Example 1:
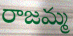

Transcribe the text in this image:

రాజమ్మ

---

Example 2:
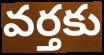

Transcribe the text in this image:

వర్తకు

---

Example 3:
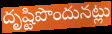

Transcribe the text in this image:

దృష్టిపొందునట్లు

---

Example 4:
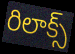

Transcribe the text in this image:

రిలాక్స్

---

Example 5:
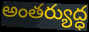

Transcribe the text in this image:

అంతర్యుద్ధ